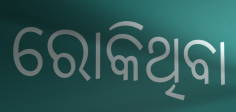
ରୋକିଥିବା